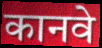
कानवे